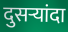
दुसर्‍यांदा